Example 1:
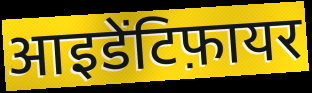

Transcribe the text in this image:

आइडेंटिफ़ायर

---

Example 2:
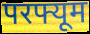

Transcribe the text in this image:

परफ्यूम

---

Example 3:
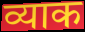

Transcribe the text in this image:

व्याक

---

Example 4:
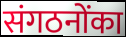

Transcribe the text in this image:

संगठनोंका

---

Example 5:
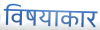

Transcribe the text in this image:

विषयाकार